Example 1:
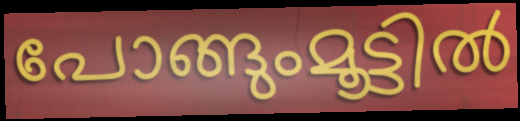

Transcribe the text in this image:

പോങ്ങുംമൂട്ടിൽ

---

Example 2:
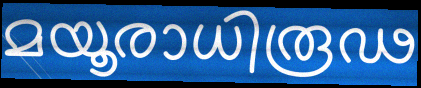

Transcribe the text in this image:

മയൂരാധിരൂഢ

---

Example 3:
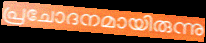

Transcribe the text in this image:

പ്രചോദനമായിരുന്നു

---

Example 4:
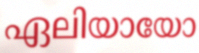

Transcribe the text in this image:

ഏലിയായോ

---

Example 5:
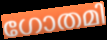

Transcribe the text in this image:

ഗോതമി